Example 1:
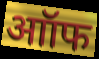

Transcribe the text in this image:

आॉफ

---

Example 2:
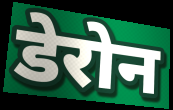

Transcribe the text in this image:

डेरोन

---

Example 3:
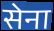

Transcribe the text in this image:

सेना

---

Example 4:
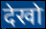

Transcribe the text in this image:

देखो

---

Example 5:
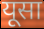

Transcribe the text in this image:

यूसा